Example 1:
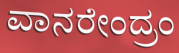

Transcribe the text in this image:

ವಾನರೇಂದ್ರಂ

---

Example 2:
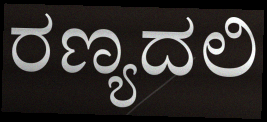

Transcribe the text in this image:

ರಣ್ಯದಲಿ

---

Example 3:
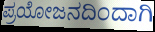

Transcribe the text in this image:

ಪ್ರಯೋಜನದಿಂದಾಗಿ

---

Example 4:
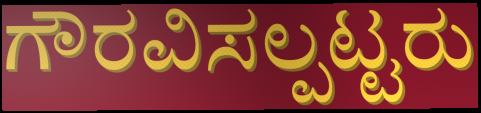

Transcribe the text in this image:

ಗೌರವಿಸಲ್ಪಟ್ಟರು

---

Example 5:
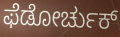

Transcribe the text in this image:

ಫೆಡೋರ್ಚುಕ್